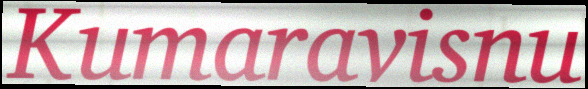
Kumaravisnu